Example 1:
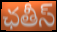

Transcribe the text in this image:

ఛతీస్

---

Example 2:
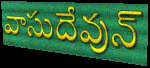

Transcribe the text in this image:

వాసుదేవున్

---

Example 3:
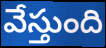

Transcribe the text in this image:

వేస్తుంది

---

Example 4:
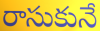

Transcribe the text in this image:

రాసుకునే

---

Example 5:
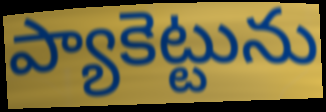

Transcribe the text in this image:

ప్యాకెట్టును